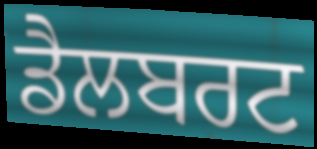
ਡੈਲਬਰਟ